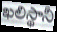
ఖలిస్థానీ